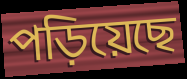
পড়িয়েছে